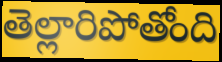
తెల్లారిపోతోంది